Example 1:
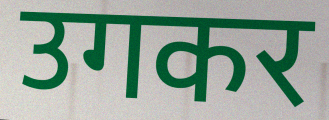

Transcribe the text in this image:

उगकर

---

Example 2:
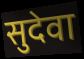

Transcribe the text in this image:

सुदेवा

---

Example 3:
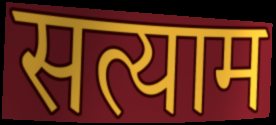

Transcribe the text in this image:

सत्याम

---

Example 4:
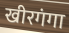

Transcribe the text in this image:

खीरगंगा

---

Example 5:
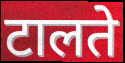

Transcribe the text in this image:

टालते